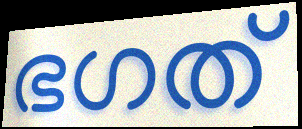
ഭഗത്